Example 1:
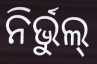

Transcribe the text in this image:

ନିର୍ଭୁଲ୍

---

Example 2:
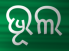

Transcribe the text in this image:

ଭୂଲ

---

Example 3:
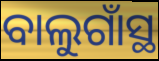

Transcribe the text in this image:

ବାଲୁଗାଁସ୍ଥ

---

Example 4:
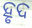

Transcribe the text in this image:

ହୃଦ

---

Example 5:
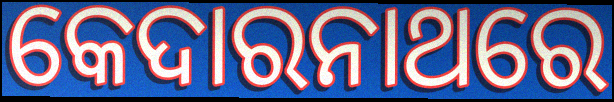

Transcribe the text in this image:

କେଦାରନାଥରେ